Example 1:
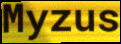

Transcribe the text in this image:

Myzus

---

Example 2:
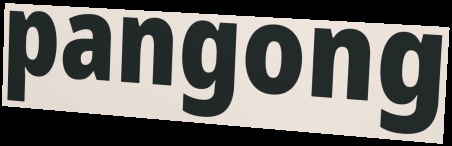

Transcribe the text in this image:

pangong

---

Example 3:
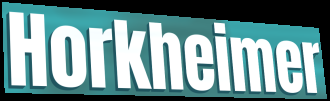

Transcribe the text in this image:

Horkheimer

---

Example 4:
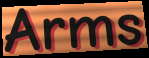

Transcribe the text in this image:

Arms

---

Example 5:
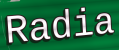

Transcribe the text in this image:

Radia